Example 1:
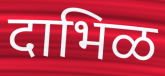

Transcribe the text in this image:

दाभिळ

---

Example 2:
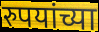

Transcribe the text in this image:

रुपयांच्या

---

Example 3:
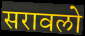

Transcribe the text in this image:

सरावलो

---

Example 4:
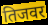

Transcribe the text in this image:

तिजवर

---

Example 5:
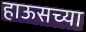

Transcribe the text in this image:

हाऊसच्या